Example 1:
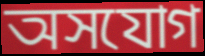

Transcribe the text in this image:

অসযোগ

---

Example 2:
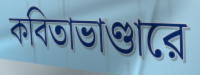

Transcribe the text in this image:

কবিতাভাণ্ডারে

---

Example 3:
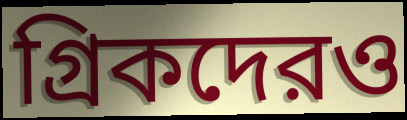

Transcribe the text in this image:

গ্রিকদেরও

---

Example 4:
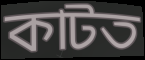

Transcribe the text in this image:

কাটত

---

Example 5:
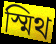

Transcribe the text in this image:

স্মিথ